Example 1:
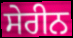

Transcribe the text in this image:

ਸੇਰੀਨ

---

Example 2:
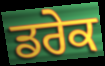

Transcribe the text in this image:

ਡਰੇਕ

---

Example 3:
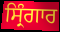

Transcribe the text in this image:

ਸ੍ਰਿੰਗਾਰ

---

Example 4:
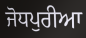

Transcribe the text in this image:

ਜੋਧਪੁਰੀਆ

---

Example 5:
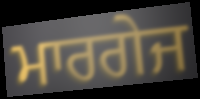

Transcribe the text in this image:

ਮਾਰਗੇਜ